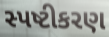
સ્પષ્ટીકરણ